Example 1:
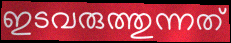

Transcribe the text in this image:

ഇടവരുത്തുന്നത്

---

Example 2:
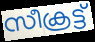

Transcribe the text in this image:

സീക്രട്ട്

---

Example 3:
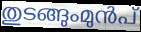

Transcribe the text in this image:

തുടങ്ങുംമുൻപ്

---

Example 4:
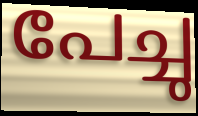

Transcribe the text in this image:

പേച്ചു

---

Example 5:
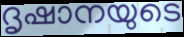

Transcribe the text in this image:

ദൃഷാനയുടെ